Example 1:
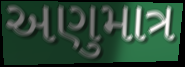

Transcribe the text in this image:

અણુમાત્ર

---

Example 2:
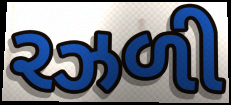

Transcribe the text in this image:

રઝળી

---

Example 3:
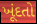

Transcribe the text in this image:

ખૂંદતો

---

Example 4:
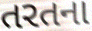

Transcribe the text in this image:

તરતના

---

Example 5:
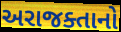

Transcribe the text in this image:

અરાજક્તાનો